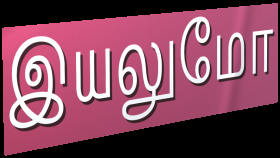
இயலுமோ